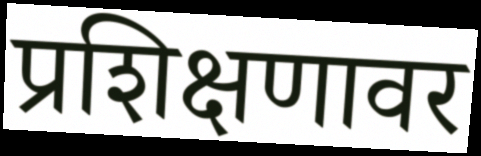
प्रशिक्षणावर